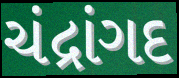
ચંદ્રાંગદ